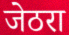
जेठरा